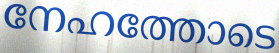
നേഹത്തോടെ